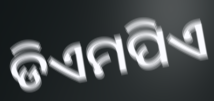
ଡିଏମପିଏ